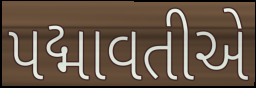
પદ્માવતીએ